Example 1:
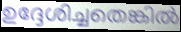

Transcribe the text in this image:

ഉദ്ദേശിച്ചതെങ്കിൽ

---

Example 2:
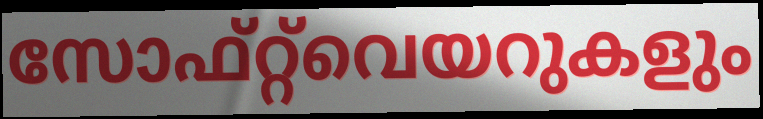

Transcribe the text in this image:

സോഫ്റ്റ്‌വെയറുകളും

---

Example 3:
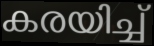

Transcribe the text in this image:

കരയിച്ച്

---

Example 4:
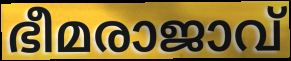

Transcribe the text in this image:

ഭീമരാജാവ്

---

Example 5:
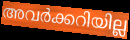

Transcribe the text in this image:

അവർക്കറിയില്ല